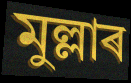
মুল্লাৰ